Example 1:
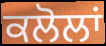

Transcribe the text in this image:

ਕਲੋਲਾਂ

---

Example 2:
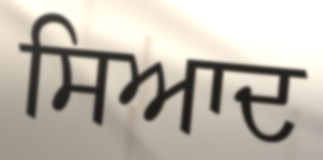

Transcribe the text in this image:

ਸਿਆਦ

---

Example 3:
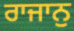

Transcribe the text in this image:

ਰਾਜਾਨੁ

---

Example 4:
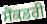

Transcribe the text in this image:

ਸੈਂਕਡਰੀ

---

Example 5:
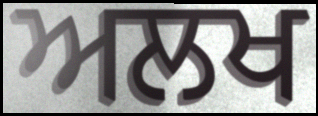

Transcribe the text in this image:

ਅਲਖ